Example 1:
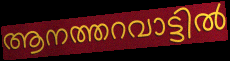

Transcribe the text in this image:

ആനത്തറവാട്ടിൽ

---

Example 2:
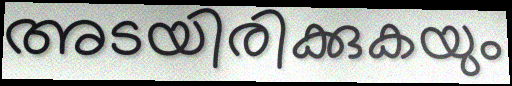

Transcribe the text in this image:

അടയിരിക്കുകയും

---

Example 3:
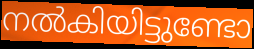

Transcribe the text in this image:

നൽകിയിട്ടുണ്ടോ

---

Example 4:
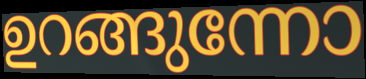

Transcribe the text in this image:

ഉറങ്ങുന്നോ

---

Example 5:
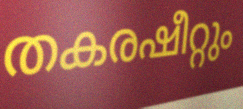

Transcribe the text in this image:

തകരഷീറ്റും